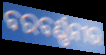
ବରବର୍ଣ୍ଣନୀର